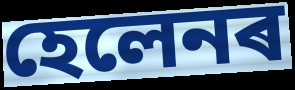
হেলেনৰ